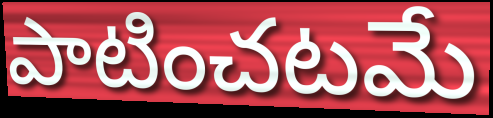
పాటించటమే